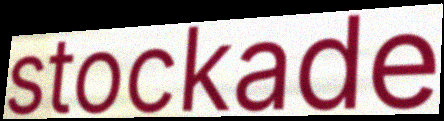
stockade